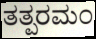
ತತ್ಪರಮಂ